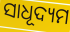
ସାଧୂଦ୍ୟମ